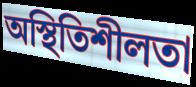
অস্থিতিশীলতা